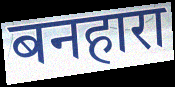
बनहारा